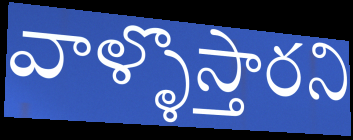
వాళ్ళొస్తారని